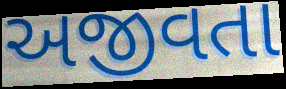
અજીવતા